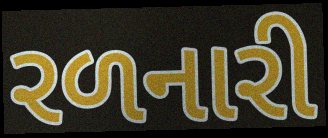
રળનારી